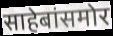
साहेबांसमोर